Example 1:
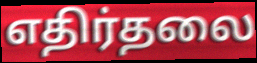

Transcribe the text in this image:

எதிர்தலை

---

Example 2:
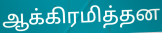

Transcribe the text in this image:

ஆக்கிரமித்தன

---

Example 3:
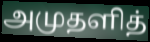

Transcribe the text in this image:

அமுதளித்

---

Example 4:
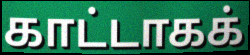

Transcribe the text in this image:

காட்டாகக்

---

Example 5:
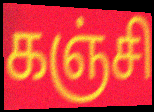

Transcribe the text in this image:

கஞ்சி